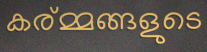
കര്മ്മങ്ങളുടെ